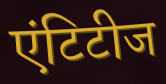
एंटिटीज